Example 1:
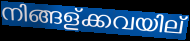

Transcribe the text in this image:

നിങ്ങള്ക്കവയില്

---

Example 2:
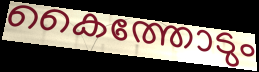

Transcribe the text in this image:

കൈത്തോടും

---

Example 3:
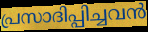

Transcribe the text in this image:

പ്രസാദിപ്പിച്ചവൻ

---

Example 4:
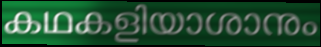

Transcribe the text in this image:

കഥകളിയാശാനും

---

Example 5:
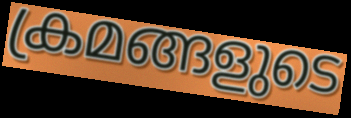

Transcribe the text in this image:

ക്രമങ്ങളുടെ